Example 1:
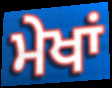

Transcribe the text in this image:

ਮੇਖਾਂ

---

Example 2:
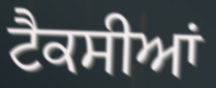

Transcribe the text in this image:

ਟੈਕਸੀਆਂ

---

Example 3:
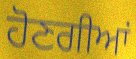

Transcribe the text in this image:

ਹੋਣਗੀਆਂ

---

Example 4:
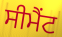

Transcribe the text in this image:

ਸੀਮੈੰਟ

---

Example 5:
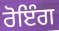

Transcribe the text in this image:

ਰੋਇੰਗ